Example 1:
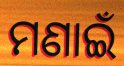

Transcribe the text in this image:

ମଣାଇଁ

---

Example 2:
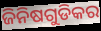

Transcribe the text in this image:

ଜିନିଷଗୁଡିକର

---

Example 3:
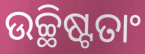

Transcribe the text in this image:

ଉଚ୍ଛିଷ୍ଟତାଂ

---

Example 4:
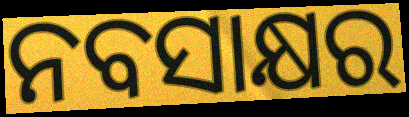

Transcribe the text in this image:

ନବସାକ୍ଷର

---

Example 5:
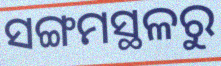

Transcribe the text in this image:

ସଙ୍ଗମସ୍ଥଳରୁ